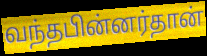
வந்தபின்னர்தான்